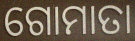
ଗୋମାତା